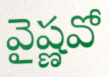
వైష్ణవో